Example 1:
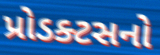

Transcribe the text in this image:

પ્રોડક્ટસનો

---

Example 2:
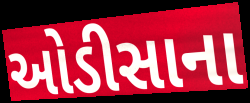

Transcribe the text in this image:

ઓડીસાના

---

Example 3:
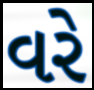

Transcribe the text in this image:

વરે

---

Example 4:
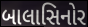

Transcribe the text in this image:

બાલાસિનોર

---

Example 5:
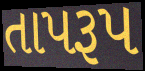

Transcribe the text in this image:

તાપરૂપ